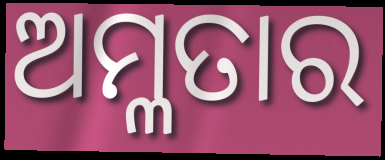
ଅମ୍ଳତାର